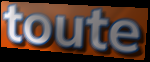
toute